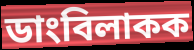
ডাংবিলাকক